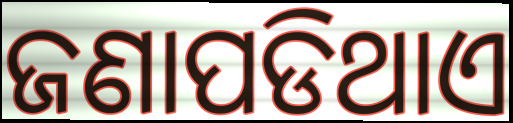
ଜଣାପଡିଥାଏ